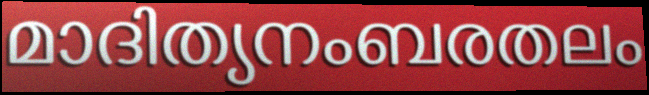
മാദിത്യനംബരതലം